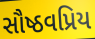
સૌષ્ઠવપ્રિય